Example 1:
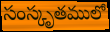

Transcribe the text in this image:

సంస్కృతములో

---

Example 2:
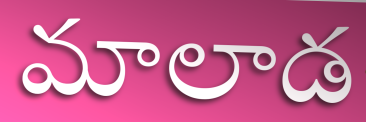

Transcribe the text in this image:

మాలాడ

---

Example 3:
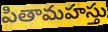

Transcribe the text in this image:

పితామహస్తు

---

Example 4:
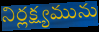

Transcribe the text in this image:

నిర్లక్ష్యమును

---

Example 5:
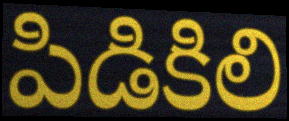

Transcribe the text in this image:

పిడికిలి